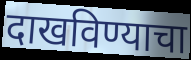
दाखविण्याचा